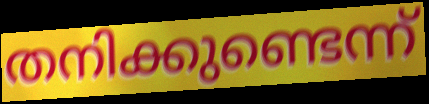
തനിക്കുണ്ടെന്ന്